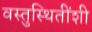
वस्तुस्थितींशी